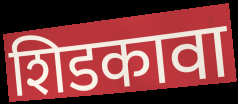
शिडकावा